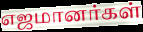
எஜமானர்கள்